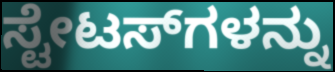
ಸ್ಟೇಟಸ್‌ಗಳನ್ನು